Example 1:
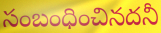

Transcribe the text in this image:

సంబంధించినదనీ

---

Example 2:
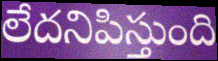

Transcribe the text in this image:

లేదనిపిస్తుంది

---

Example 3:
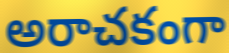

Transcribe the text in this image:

అరాచకంగా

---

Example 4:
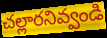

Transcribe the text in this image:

చల్లారనివ్వండి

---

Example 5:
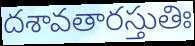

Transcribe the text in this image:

దశావతారస్తుతిః